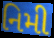
નિમી